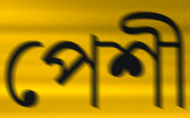
পেশী